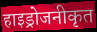
हाइड्रोजनीकृत